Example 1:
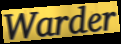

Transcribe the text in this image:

Warder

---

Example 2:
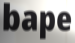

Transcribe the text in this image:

bape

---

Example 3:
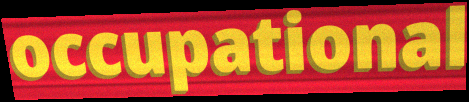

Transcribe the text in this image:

occupational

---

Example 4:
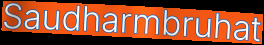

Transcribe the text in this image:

Saudharmbruhat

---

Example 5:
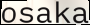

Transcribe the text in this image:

osaka